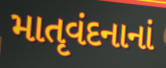
માતૃવંદનાનાં